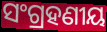
ସଂଗ୍ରହଣୀୟ